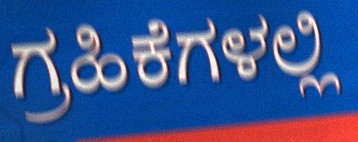
ಗ್ರಹಿಕೆಗಳಲ್ಲಿ